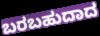
ಬರಬಹುದಾದ